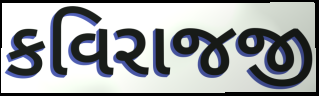
કવિરાજજી